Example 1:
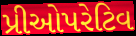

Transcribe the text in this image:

પ્રીઓપરેટિવ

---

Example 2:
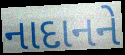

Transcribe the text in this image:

નાદાનને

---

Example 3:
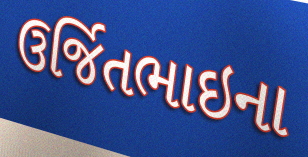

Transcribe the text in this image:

ઉર્જિતભાઇના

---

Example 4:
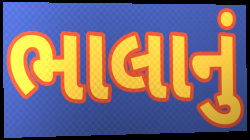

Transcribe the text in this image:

ભાલાનું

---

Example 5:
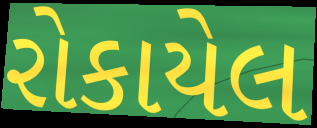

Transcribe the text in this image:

રોકાયેલ